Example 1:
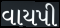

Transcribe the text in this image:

વાયપી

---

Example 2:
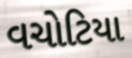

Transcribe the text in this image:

વચોટિયા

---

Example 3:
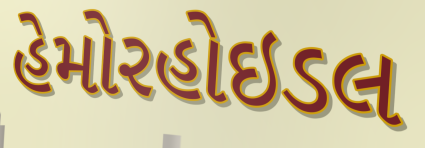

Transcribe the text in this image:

હેમોરહોઇડલ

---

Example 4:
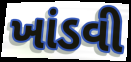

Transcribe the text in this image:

ખાંડવી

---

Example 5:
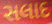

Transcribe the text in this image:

સલાદ